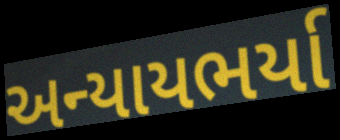
અન્યાયભર્યા